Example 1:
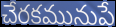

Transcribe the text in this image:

చేరకమునుపే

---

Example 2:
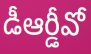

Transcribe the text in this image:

డీఆర్డీవో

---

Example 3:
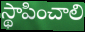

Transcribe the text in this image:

స్థాపించాలి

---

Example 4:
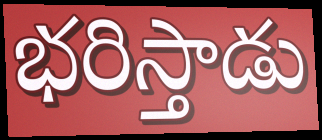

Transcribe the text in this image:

భరిస్తాడు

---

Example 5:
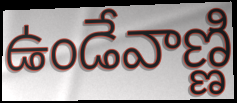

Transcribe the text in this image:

ఉండేవాణ్ణి